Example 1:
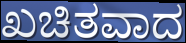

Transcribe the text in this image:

ಖಚಿತವಾದ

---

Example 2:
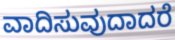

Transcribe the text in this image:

ವಾದಿಸುವುದಾದರೆ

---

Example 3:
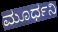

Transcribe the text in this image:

ಮೂರ್ಧನಿ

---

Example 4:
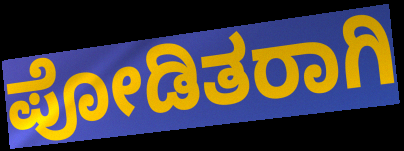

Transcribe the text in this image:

ಪೋಡಿತರಾಗಿ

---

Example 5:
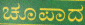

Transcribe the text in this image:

ಚೂಪಾದ